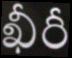
ఖీరీ